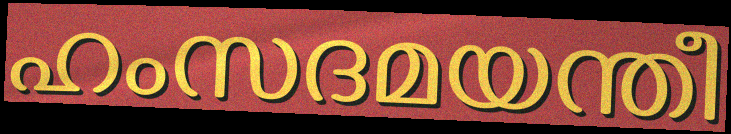
ഹംസദമയന്തീ